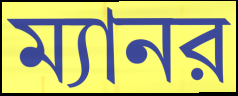
ম্যানর